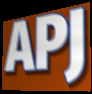
APJ